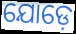
ଯୋଡ଼େ